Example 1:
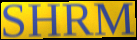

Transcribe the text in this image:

SHRM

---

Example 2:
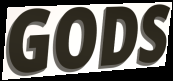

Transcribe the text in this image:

GODS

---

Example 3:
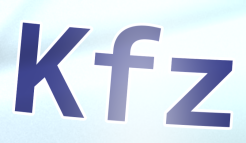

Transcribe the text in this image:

Kfz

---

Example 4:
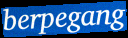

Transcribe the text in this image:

berpegang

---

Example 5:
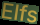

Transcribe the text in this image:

Elfs